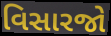
વિસારજો